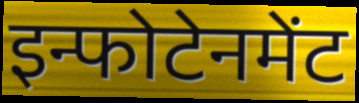
इन्फोटेनमेंट